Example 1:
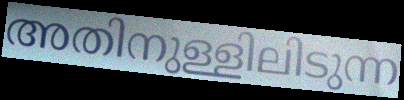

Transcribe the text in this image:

അതിനുള്ളിലിടുന്ന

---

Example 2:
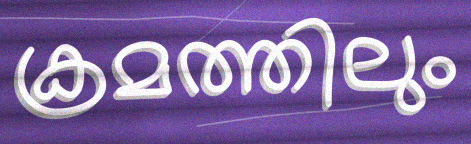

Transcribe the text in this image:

ക്രമത്തിലും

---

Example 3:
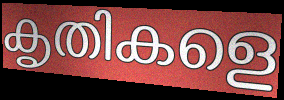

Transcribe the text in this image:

കൃതികളെ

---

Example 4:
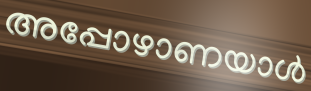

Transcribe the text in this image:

അപ്പോഴാണയാൾ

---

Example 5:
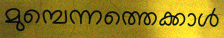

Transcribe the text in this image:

മുമ്പെന്നത്തെക്കാൾ